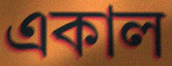
একাল